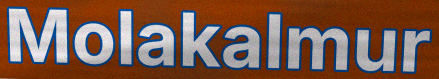
Molakalmur